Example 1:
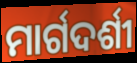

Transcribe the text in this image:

ମାର୍ଗଦର୍ଶୀ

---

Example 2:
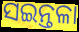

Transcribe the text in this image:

ସଇନ୍ତଳା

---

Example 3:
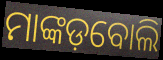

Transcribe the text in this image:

ମାଙ୍କଡ଼ବୋଲି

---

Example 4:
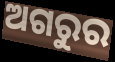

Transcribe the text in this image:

ଅଗରୁର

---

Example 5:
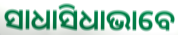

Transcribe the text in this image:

ସାଧାସିଧାଭାବେ